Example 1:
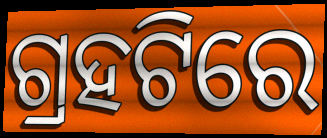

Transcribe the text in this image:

ଗ୍ରହଟିରେ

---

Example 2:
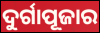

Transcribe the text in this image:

ଦୁର୍ଗାପୂଜାର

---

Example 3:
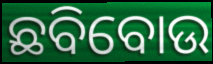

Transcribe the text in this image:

ଛବିବୋଉ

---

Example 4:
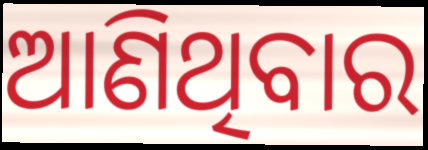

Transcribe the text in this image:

ଆଣିଥିବାର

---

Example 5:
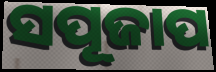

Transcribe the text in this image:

ସପୂଜାପ